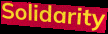
Solidarity